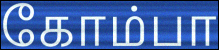
கோம்பா